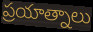
ప్రయాత్నాలు